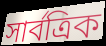
সার্বত্রিক